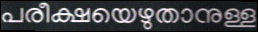
പരീക്ഷയെഴുതാനുള്ള